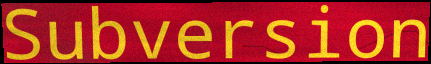
Subversion